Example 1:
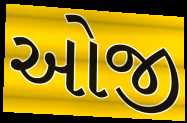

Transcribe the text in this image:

ઓજી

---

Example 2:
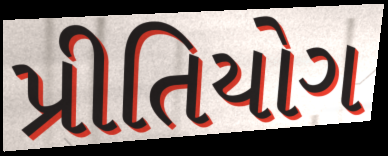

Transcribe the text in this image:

પ્રીતિયોગ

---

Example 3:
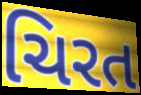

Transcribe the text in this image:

ચિરત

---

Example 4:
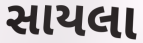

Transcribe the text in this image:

સાયલા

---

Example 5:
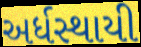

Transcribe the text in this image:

અર્ધસ્થાયી